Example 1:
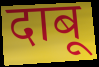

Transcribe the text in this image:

दाबू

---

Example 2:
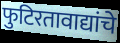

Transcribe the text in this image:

फुटिरतावाद्यांचे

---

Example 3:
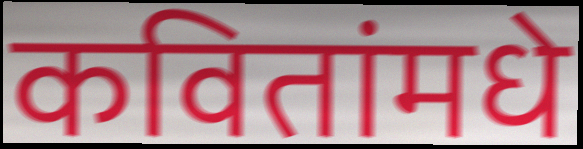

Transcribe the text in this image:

कवितांमधे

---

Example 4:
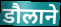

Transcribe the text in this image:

डौलाने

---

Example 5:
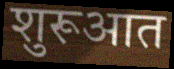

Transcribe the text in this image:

शुरूआत